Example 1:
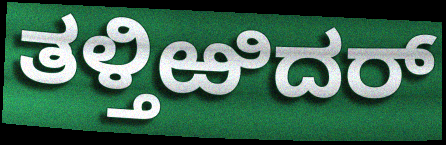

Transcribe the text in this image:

ತಳ್ತಿಱಿದರ್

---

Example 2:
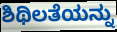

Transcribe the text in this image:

ಶಿಥಿಲತೆಯನ್ನು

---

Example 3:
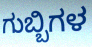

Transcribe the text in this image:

ಗುಬ್ಬಿಗಳ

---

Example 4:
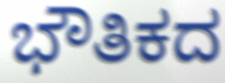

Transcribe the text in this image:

ಭೌತಿಕದ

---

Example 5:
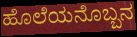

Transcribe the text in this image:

ಹೊಲೆಯನೊಬ್ಬನ